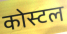
कोस्टल